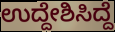
ಉದ್ದೇಶಿಸಿದ್ದೆ